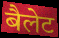
बैलेट